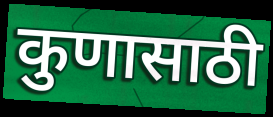
कुणासाठी